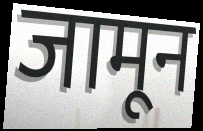
जामून